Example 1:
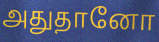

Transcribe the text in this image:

அதுதானோ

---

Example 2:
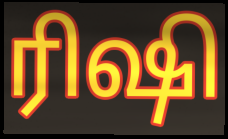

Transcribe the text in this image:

ரிஷி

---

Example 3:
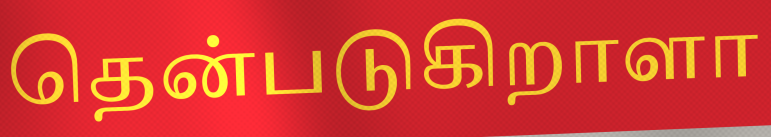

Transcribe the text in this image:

தென்படுகிறாளா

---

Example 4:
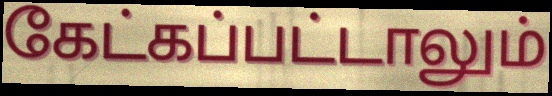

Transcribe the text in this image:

கேட்கப்பட்டாலும்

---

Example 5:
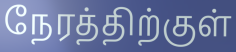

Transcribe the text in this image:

நேரத்திற்குள்